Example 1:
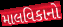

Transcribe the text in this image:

માલવિકાનો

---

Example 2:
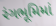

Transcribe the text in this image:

રંગભૂમિમાં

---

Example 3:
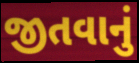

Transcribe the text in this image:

જીતવાનું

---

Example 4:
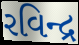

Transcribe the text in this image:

રવિન્દ્ર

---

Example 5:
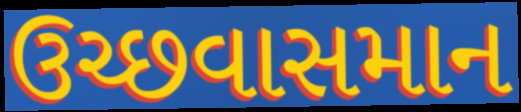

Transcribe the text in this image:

ઉચ્છવાસમાન